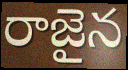
రాజైన